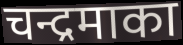
चन्द्रमाका